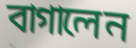
বাগালেন